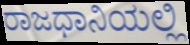
ರಾಜಧಾನಿಯಲ್ಲಿ